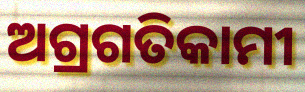
ଅଗ୍ରଗତିକାମୀ